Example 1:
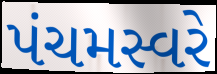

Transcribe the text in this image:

પંચમસ્વરે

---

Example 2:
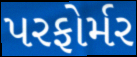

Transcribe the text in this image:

પરફોર્મર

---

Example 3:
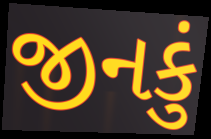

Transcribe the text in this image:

જીનકું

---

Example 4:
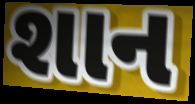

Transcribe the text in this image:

શાન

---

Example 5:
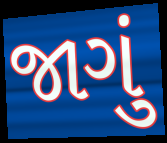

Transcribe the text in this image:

જાગું